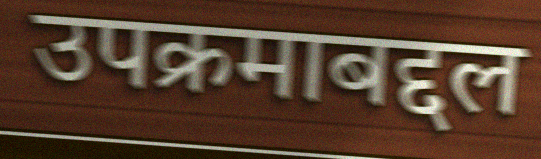
उपक्रमाबद्दल